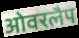
ओवरलैप